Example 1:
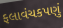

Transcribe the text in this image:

ફલાવંચકપણું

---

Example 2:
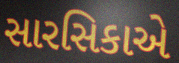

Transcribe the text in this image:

સારસિકાએ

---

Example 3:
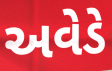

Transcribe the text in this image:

અવેડે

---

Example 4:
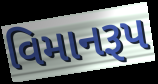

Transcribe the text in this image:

વિમાનરૂપ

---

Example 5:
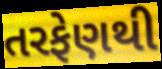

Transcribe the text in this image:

તરફેણથી